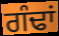
ਗੰਢਾਂ